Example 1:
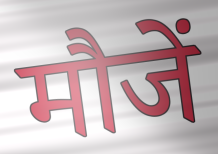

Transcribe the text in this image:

मौजें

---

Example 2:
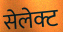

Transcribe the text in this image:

सेलेक्ट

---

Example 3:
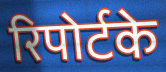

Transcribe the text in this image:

रिपोर्टके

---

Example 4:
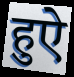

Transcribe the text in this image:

हुऐ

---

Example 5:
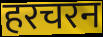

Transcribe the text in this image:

हरचरन